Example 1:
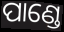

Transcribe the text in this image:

ପାଣ୍ଡେ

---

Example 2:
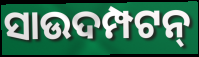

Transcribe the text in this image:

ସାଉଦମ୍ପଟନ୍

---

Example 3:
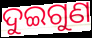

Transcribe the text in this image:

ଦୁଇଗୁଣ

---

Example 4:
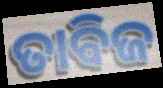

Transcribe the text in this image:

ତାବିଜ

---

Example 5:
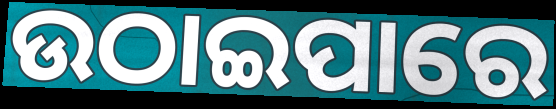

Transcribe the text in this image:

ଉଠାଇପାରେ